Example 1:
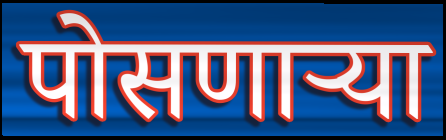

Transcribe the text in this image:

पोसणाऱ्या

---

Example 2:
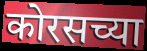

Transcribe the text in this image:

कोरसच्या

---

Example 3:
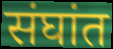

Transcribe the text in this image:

संघांत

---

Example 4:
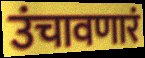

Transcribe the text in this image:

उंचावणारं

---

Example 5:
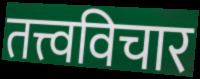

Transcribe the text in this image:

तत्त्वविचार